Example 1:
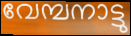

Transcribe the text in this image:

വേമ്പനാട്ടു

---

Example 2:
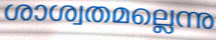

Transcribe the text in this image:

ശാശ്വതമല്ലെന്നു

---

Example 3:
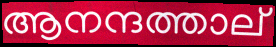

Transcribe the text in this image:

ആനന്ദത്താല്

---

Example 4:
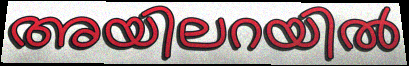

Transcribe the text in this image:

അയിലറയിൽ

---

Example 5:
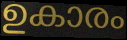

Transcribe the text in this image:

ഉകാരം